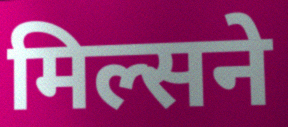
मिल्सने